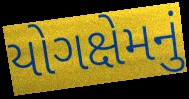
યોગક્ષેમનું